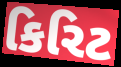
કિરિટ